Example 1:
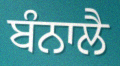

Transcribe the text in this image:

ਬੰਨਾਲੈ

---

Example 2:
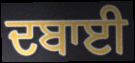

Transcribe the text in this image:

ਦਬਾਈ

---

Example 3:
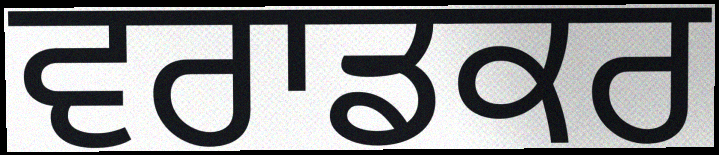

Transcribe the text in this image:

ਵਰਾਡਕਰ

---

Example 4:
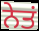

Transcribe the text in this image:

ਨੇਤਂ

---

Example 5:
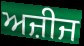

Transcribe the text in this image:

ਅਜ਼ੀਜ